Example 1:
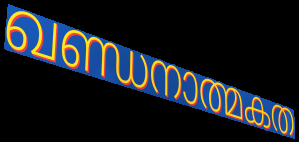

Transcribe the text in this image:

ഖണ്ഡനാത്മകത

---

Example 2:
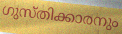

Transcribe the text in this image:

ഗുസ്തിക്കാരനും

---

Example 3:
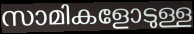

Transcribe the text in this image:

സാമികളോടുള്ള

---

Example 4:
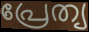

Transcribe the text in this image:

പ്രേത്യ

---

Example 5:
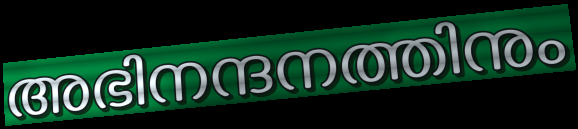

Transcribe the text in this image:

അഭിനന്ദനത്തിനും